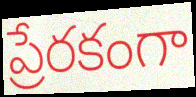
ప్రేరకంగా